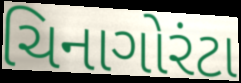
ચિનાગોરંટા